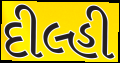
દીલ્હી